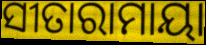
ସୀତାରାମାୟା